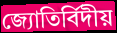
জ্যোতির্বিদীয়